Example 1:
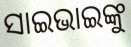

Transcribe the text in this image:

ସାଇଭାଇଙ୍କୁ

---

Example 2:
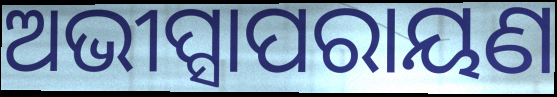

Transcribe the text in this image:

ଅଭୀପ୍ସାପରାୟଣ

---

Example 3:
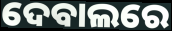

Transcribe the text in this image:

ଦେବାଲରେ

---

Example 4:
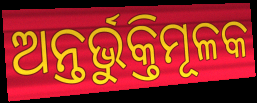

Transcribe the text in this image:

ଅନ୍ତର୍ଭୁକ୍ତିମୂଳକ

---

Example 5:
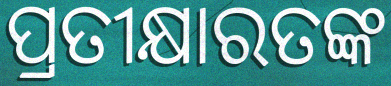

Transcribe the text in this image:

ପ୍ରତୀକ୍ଷାରତଙ୍କ